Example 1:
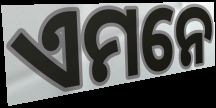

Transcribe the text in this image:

ଏମନେ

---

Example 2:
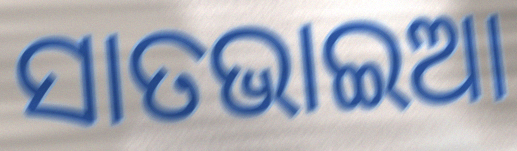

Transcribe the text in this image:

ସାତଭାଇଆ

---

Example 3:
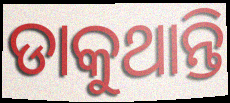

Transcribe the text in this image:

ଡାକୁଥାନ୍ତି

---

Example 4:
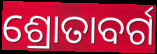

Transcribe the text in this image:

ଶ୍ରୋତାବର୍ଗ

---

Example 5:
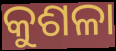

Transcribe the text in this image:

କୁଶଳା